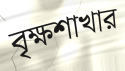
বৃক্ষশাখার